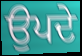
ਉਪਦੇ